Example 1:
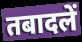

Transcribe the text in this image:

तबादलें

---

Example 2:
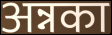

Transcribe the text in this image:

अन्नका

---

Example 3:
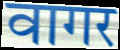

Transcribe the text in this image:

वागर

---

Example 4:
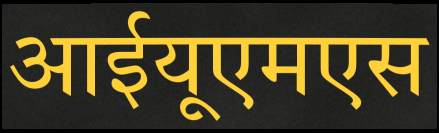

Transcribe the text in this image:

आईयूएमएस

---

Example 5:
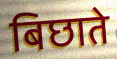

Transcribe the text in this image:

बिछाते